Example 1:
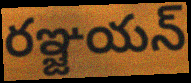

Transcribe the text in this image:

రఞ్జయన్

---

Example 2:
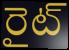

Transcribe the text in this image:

రైట్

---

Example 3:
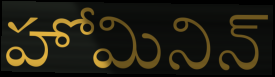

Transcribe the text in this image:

హోమినిన్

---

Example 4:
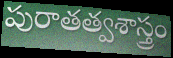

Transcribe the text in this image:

పురాతత్వశాస్త్రం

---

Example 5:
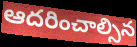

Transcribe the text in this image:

ఆదరించాల్సిన